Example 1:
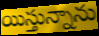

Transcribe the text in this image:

యిస్తున్నాను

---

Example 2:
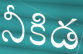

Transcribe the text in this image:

నీకిడ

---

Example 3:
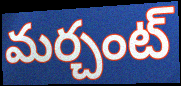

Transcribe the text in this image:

మర్చంట్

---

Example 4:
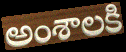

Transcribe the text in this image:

అంశాలకి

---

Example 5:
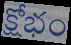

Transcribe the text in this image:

క్షోభం